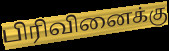
பிரிவினைக்கு